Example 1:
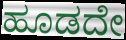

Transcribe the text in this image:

ಹೂಡದೇ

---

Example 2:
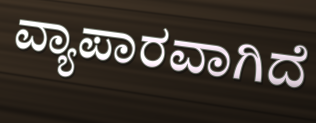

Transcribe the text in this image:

ವ್ಯಾಪಾರವಾಗಿದೆ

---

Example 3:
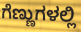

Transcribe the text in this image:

ಗೆಣ್ಣುಗಳಲ್ಲಿ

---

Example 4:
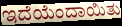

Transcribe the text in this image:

ಇದೆಯೆಂದಾಯಿತು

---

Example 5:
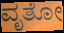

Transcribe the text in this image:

ವೃತೋ